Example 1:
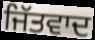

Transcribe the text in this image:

ਜਿੱਤਵਾਦ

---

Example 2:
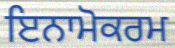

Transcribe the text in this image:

ਇਨਾਮੋਕਰਮ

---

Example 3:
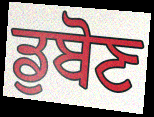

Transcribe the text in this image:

ਡੁਬੋਣ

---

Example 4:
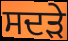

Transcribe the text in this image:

ਸਦੜੇ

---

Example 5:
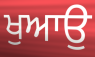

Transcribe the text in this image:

ਖੁਆਉ